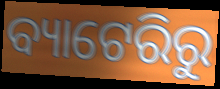
ବ୍ୟାଟେରିରୁ